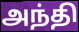
அந்தி